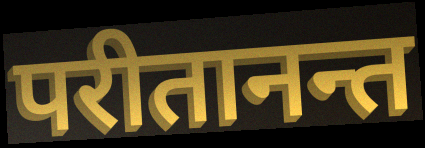
परीतानन्त